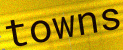
towns